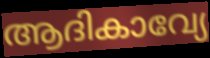
ആദികാവ്യേ